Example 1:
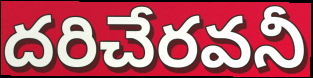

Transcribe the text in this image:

దరిచేరవనీ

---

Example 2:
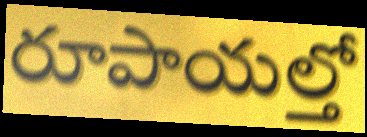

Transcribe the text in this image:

రూపాయల్తో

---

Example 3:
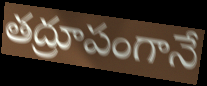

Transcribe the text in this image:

తద్రూపంగానే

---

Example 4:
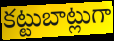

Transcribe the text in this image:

కట్టుబాట్లుగా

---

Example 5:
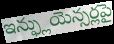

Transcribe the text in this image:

ఇన్ఫ్లుయెన్సర్లపై